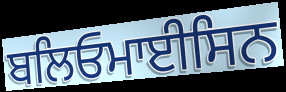
ਬਲਿਓਮਾਈਸਿਨ